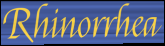
Rhinorrhea